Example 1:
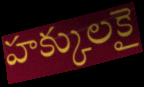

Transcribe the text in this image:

హక్కులకై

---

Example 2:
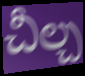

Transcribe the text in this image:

చీల్చ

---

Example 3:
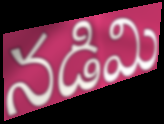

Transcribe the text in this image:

నడిమి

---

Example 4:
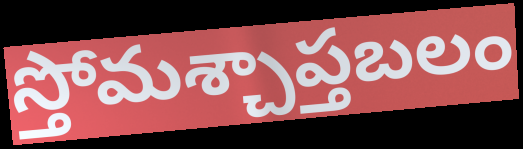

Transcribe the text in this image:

స్తోమశ్చాప్తబలం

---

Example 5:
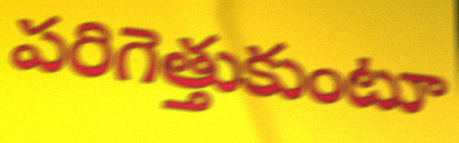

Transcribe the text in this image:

పరిగెత్తుకుంటూ